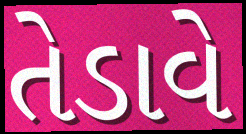
તેડાવે